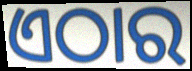
ଏଠାର